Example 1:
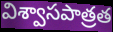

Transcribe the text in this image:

విశ్వాసపాత్రత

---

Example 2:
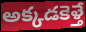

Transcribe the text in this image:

అక్కడకెళ్తే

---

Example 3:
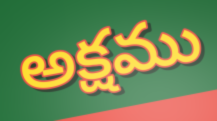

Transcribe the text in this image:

అక్షము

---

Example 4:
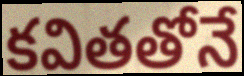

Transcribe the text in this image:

కవితతోనే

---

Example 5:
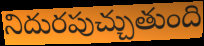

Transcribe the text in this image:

నిదురపుచ్చుతుంది